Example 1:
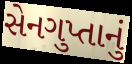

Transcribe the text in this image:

સેનગુપ્‍તાનું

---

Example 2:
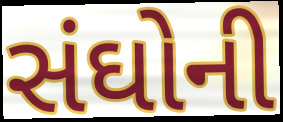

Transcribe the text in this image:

સંઘોની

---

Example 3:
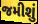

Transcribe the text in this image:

જમીશું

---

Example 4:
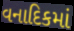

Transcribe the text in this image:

વનાદિકમાં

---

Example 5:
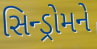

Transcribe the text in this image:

સિન્ડ્રોમને